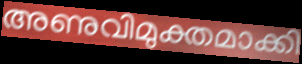
അണുവിമുക്തമാക്കി